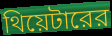
থিয়েটারের